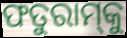
ଫତୁରାମ୍‌କୁ